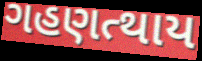
ગહણત્થાય